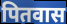
पितवास